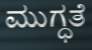
ಮುಗ್ಧತೆ